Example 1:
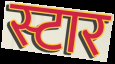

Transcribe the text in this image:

स्टार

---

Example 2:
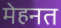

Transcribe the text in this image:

मेहनत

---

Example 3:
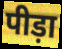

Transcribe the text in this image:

पीड़ा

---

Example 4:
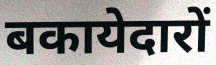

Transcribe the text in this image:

बकायेदारों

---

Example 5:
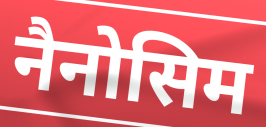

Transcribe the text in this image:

नैनोसिम